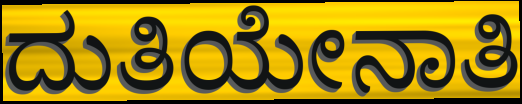
ದುತಿಯೇನಾತಿ